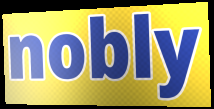
nobly